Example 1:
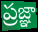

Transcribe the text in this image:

ప్రజ్ఞా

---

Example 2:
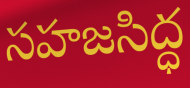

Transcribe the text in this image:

సహజసిద్ధ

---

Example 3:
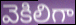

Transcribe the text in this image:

వెకిలిగా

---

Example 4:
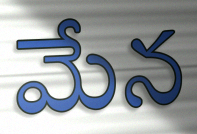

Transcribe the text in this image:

మేన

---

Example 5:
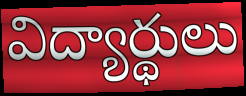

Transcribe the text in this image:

విద్యార్థులు